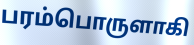
பரம்பொருளாகி